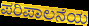
ಪರಿಪಾಲನೆಯ